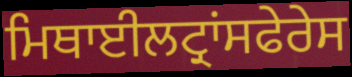
ਮਿਥਾਈਲਟ੍ਰਾਂਸਫੇਰੇਸ